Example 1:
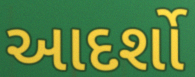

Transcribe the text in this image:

આદર્શો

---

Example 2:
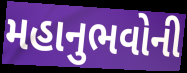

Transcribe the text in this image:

મહાનુભવોની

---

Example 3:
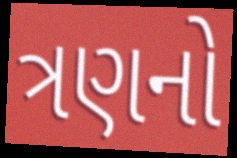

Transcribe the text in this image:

ત્રણનો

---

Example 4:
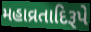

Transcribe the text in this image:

મહાવ્રતાદિરૂપે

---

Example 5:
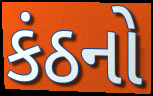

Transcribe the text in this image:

કંઠનો